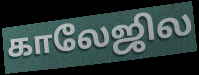
காலேஜில